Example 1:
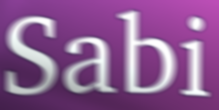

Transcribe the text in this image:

Sabi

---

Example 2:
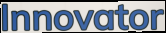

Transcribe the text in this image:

Innovator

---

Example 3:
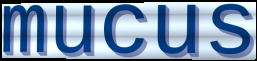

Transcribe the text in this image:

mucus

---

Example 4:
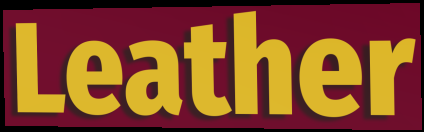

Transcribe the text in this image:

Leather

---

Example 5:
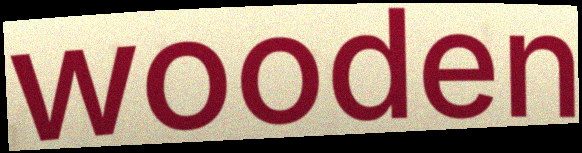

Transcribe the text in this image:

wooden